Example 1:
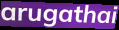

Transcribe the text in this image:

arugathai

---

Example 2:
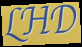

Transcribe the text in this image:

LHD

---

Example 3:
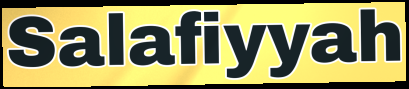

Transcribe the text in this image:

Salafiyyah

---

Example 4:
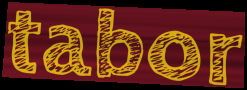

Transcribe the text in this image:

tabor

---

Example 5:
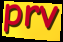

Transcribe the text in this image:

prv